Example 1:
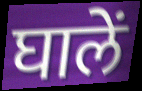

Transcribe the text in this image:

घालें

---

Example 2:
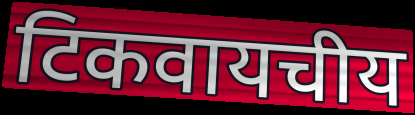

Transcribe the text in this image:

टिकवायचीय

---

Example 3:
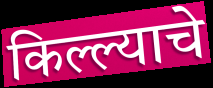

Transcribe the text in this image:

किल्ल्याचे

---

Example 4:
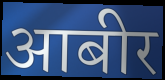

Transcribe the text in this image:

आबीर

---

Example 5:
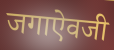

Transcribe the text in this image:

जगाऐवजी